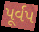
પૂર્વપ